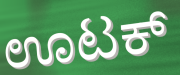
ಊಟಕ್